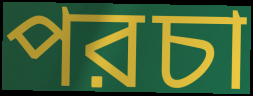
পরচা